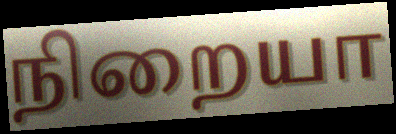
நிறையா